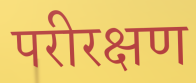
परीरक्षण